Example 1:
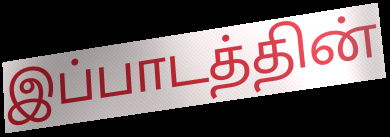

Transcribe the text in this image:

இப்பாடத்தின்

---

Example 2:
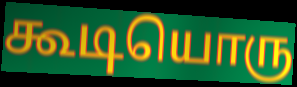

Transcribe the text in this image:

கூடியொரு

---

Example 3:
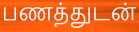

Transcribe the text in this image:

பணத்துடன்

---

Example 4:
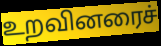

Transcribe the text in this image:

உறவினரைச்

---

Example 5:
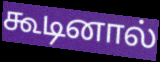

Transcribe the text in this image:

கூடினால்